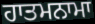
ਹਾਤਮਨਾਮਾ